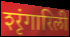
श्रृंगारिली